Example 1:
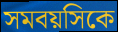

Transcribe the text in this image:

সমবয়সিকে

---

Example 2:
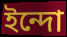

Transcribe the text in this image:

ইন্দো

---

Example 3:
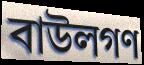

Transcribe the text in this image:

বাউলগণ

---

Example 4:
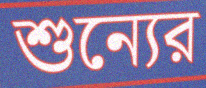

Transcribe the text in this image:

শুন্যের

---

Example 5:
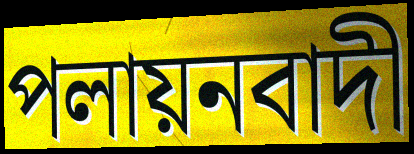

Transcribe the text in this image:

পলায়নবাদী